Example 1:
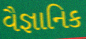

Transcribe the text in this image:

વૈજ્ઞાનિક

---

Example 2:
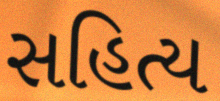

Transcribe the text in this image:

સહિત્ય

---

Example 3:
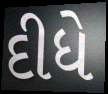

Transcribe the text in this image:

દીધે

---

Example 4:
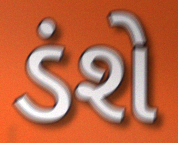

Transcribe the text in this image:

ડંશે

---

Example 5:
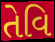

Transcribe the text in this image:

તેવિ